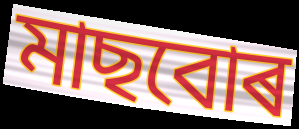
মাছবোৰ